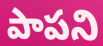
పాపని